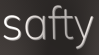
safty